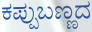
ಕಪ್ಪುಬಣ್ಣದ